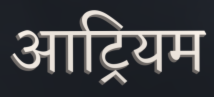
आट्रियम